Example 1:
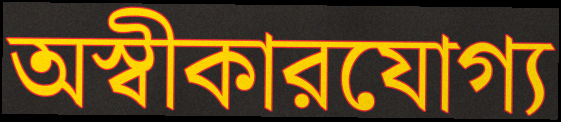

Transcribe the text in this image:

অস্বীকারযোগ্য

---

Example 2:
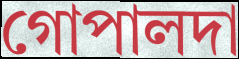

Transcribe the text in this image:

গোপালদা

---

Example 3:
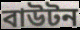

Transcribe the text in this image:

বাউটন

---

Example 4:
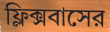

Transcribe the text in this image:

ফ্লিক্সবাসের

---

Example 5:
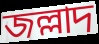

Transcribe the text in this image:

জল্লাদ